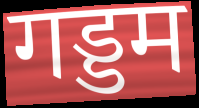
गड्डम